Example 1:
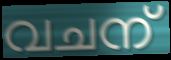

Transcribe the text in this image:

വചന്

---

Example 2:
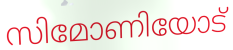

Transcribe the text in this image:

സിമോണിയോട്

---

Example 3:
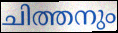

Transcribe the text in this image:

ചിത്തനും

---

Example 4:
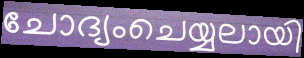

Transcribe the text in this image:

ചോദ്യംചെയ്യലായി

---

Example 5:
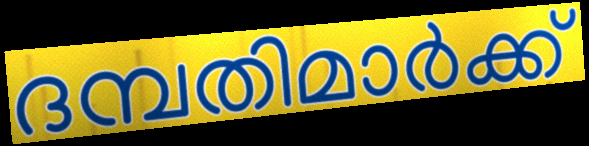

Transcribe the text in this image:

ദമ്പതിമാർക്ക്